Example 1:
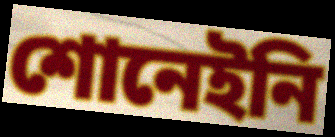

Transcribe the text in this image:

শোনেইনি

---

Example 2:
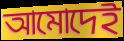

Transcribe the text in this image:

আমোদেই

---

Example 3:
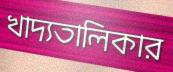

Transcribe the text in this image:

খাদ্যতালিকার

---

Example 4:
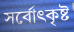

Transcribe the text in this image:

সর্বোৎকৃষ্ট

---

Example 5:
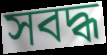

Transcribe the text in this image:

সবদ্ধ